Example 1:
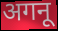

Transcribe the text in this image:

अगनू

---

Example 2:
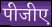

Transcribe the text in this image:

पीजीए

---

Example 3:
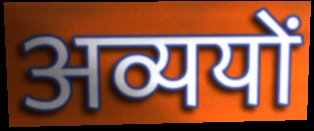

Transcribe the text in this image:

अव्ययों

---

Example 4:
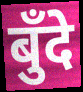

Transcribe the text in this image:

बुँदे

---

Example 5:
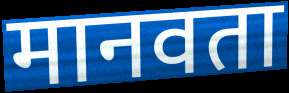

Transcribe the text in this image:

मानवता